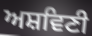
ਅਸ਼ਵਿਣੀ